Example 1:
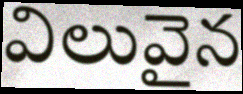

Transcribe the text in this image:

విలువైన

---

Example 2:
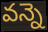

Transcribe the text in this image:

వన్నె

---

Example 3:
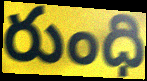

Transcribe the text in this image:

రుంధి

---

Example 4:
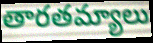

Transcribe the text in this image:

తారతమ్యాలు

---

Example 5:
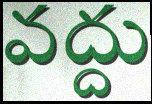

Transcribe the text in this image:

వద్దు